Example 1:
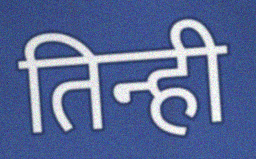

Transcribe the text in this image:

तिन्ही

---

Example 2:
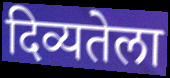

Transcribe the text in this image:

दिव्यतेला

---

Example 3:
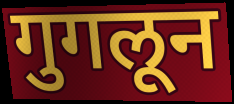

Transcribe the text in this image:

गुगलून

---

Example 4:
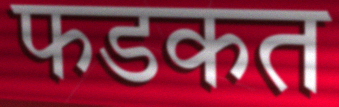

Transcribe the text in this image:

फडकत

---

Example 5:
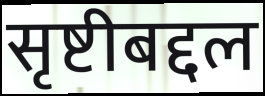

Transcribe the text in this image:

सृष्टीबद्दल